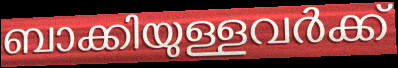
ബാക്കിയുള്ളവർക്ക്